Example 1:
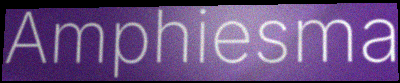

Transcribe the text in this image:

Amphiesma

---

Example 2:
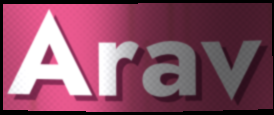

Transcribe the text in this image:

Arav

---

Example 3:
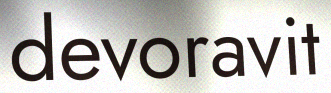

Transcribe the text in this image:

devoravit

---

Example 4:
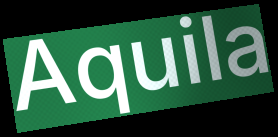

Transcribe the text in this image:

Aquila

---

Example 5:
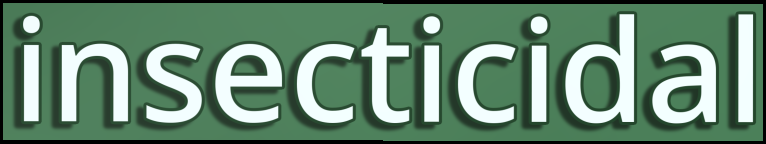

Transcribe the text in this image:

insecticidal